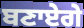
ਬਣਾਏਗੇ